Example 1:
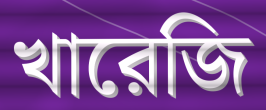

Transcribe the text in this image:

খারেজি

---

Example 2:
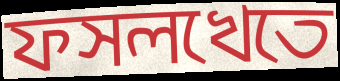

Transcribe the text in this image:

ফসলখেতে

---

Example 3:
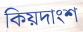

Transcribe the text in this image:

কিয়দাংশ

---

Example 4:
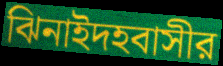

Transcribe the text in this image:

ঝিনাইদহবাসীর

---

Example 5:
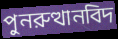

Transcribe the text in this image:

পুনরুত্থানবিদ